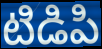
టిడిపి